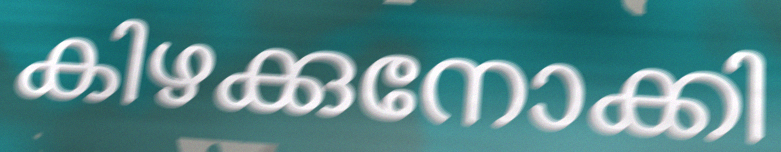
കിഴക്കുനോക്കി